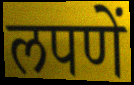
लपणें